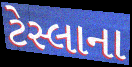
ટેસ્લાના